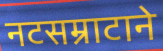
नटसम्राटाने